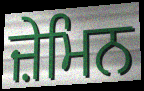
ਜ਼ੇਮਿਨ